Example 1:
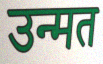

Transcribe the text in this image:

उन्मत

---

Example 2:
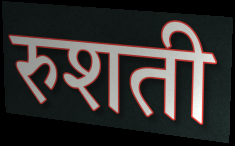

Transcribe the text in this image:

रुशती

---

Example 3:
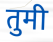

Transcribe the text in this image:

तुमी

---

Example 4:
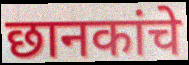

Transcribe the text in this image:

छानकांचे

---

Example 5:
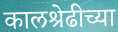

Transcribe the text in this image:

कालश्रेढीच्या